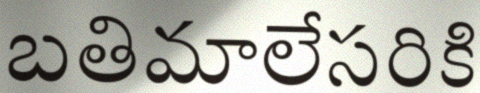
బతిమాలేసరికి